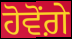
ਹੋਵੋਂਗ਼ੇ